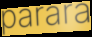
parara